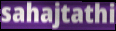
sahajtathi